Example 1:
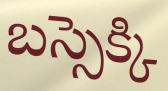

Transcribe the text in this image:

బస్సెక్కి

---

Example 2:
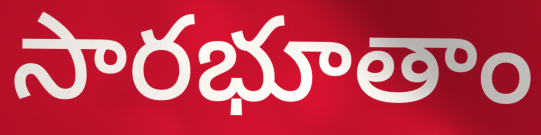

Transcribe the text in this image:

సారభూతాం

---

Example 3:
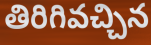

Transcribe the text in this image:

తిరిగివచ్చిన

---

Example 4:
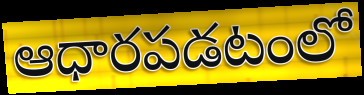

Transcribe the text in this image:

ఆధారపడటంలో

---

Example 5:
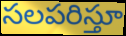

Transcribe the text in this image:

సలపరిస్తూ